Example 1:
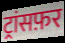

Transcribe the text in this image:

ट्रांसफ़र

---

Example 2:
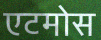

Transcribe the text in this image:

एटमोस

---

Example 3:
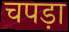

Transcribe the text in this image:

चपड़ा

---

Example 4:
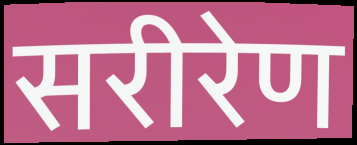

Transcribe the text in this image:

सरीरेण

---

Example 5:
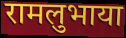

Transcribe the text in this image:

रामलुभाया